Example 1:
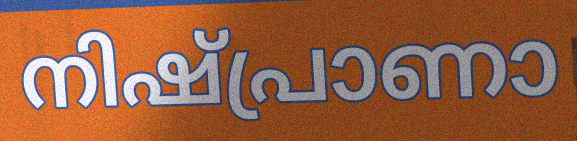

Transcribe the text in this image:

നിഷ്പ്രാണാ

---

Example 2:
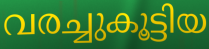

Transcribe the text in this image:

വരച്ചുകൂട്ടിയ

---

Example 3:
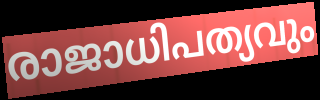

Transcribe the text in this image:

രാജാധിപത്യവും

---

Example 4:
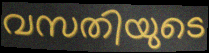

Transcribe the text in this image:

വസതിയുടെ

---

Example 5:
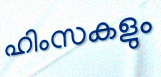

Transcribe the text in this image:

ഹിംസകളും